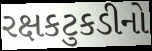
રક્ષકટુકડીનો